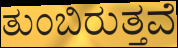
ತುಂಬಿರುತ್ತವೆ